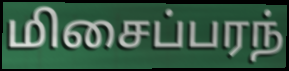
மிசைப்பரந்